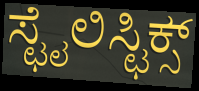
ಸ್ಟೈಲಿಸ್ಟಿಕ್ಸ್